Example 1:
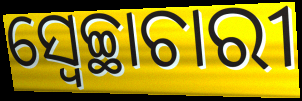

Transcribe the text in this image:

ସ୍ଵେଚ୍ଛାଚାରୀ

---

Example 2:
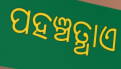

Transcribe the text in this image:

ପହଞ୍ଚତ୍ଥାଏ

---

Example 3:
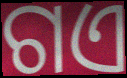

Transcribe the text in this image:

ଗଏ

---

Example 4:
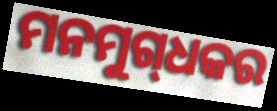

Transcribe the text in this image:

ମନମୁଗ୍‌ଧକର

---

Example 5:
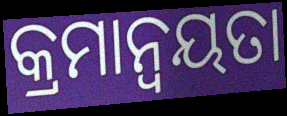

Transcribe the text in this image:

କ୍ରମାନ୍ବୟତା